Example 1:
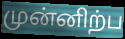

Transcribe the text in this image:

முன்னிற்ப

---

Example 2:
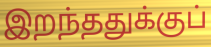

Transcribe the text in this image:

இறந்ததுக்குப்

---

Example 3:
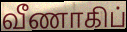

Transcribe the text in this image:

வீணாகிப்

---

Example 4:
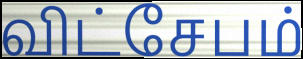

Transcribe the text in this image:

விட்சேபம்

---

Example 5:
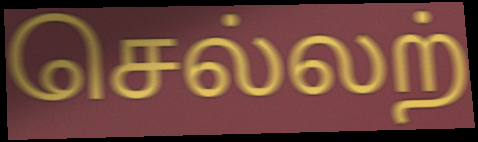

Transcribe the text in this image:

செல்லற்